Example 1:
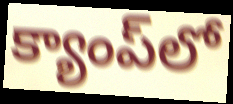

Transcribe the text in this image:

క్యాంప్‌లో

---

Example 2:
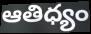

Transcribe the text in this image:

ఆతిధ్యం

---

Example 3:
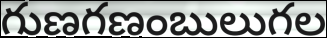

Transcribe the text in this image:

గుణగణంబులుగల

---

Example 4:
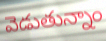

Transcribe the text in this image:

వెడుతున్నాం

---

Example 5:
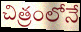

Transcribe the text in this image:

చిత్రంలోనే